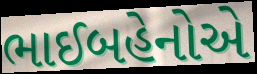
ભાઈબહેનોએ